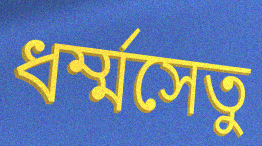
ধর্ম্মসেতু